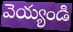
వెయ్యండి